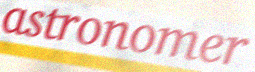
astronomer